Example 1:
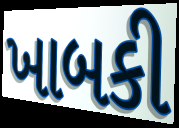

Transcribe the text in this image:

ખાબકી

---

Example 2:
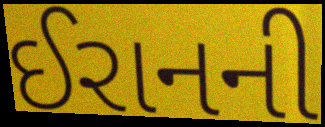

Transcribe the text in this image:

ઈરાનની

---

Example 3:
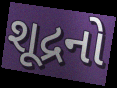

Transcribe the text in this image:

શૂદ્રનો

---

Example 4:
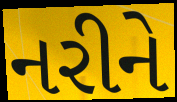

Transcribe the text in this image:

નરીને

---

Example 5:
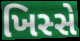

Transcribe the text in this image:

ખિસ્સે